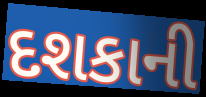
દશકાની